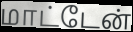
மாட்டேன்